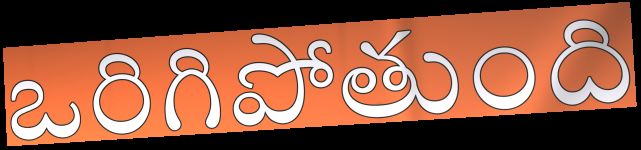
ఒరిగిపోతుంది